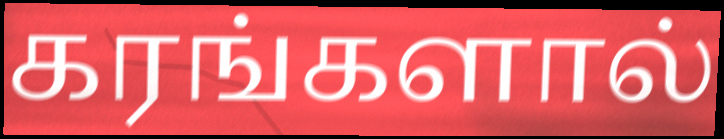
கரங்களால்